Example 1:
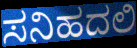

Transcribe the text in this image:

ಸನಿಹದಲಿ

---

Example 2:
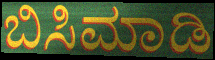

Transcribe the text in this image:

ಬಿಸಿಮಾಡಿ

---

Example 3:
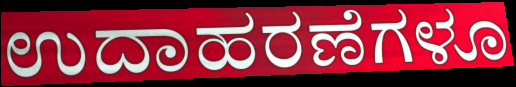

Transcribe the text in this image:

ಉದಾಹರಣೆಗಳೂ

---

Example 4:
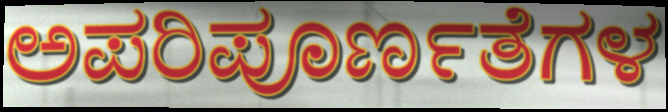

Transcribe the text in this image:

ಅಪರಿಪೂರ್ಣತೆಗಳ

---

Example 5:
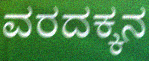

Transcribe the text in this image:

ವರದಕ್ಕನ